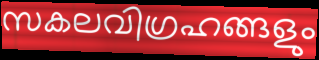
സകലവിഗ്രഹങ്ങളും